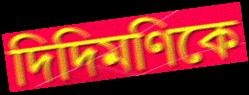
দিদিমণিকে